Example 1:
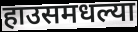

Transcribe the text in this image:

हाउसमधल्या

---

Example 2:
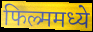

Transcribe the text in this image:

फिल्ममध्ये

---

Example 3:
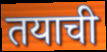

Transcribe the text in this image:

तयाची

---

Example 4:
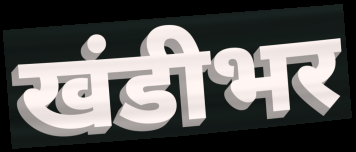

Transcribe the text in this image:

खंडीभर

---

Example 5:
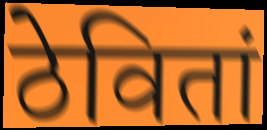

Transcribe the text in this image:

ठेवितां